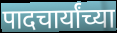
पादचार्यांच्या